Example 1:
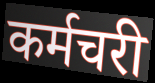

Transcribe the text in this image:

कर्मचरी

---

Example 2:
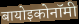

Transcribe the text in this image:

बायोइकोनॉमी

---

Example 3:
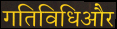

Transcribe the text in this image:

गतिविधिऔर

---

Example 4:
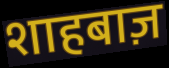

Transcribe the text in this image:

शाहबाज़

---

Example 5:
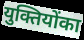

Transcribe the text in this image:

युक्तियोंका